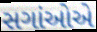
સગાંઓએ